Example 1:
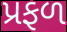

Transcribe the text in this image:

પ્રફળ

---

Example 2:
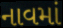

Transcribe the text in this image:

નાવમાં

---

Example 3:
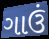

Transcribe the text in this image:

ગાઉં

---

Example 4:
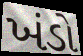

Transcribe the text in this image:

ખંડો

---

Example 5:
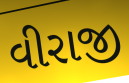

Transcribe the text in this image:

વીરાજી